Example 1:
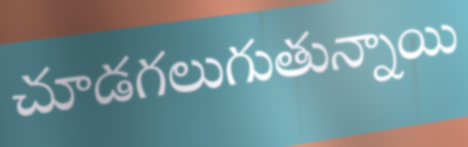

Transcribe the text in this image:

చూడగలుగుతున్నాయి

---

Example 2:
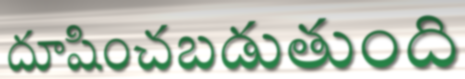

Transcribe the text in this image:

దూషించబడుతుంది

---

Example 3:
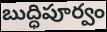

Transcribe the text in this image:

బుద్ధిపూర్వం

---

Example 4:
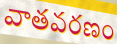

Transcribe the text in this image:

వాతవరణం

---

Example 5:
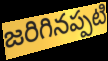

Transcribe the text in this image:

జరిగినప్పటి